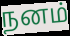
நனம்